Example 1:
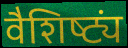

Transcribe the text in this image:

वैशिष्ट्यं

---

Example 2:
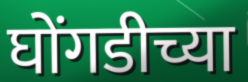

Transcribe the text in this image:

घोंगडीच्या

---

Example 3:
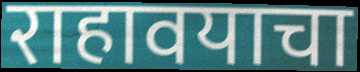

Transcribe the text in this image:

राहावयाचा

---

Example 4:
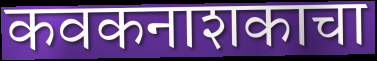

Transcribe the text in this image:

कवकनाशकाचा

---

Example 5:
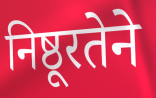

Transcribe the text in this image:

निष्ठूरतेने